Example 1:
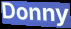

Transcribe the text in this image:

Donny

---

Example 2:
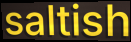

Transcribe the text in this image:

saltish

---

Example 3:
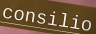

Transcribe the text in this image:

consilio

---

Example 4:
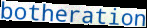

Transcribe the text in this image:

botheration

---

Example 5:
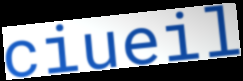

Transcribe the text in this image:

ciueil